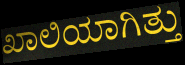
ಖಾಲಿಯಾಗಿತ್ತು